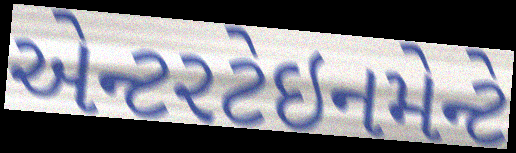
એન્ટરટેઇનમેન્ટે